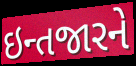
ઇન્તજારને